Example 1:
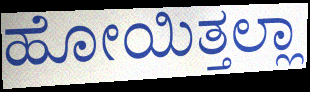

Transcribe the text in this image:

ಹೋಯಿತ್ತಲ್ಲಾ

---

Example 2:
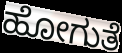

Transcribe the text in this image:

ಹೋಗುತೆ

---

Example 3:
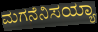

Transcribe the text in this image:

ಮಗನೆನಿಸಯ್ಯಾ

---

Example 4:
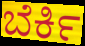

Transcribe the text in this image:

ಬೆರ್ಕಿ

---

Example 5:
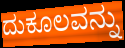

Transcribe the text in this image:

ದುಕೂಲವನ್ನು